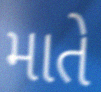
માતે